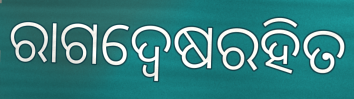
ରାଗଦ୍ୱେଷରହିତ